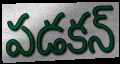
పడకన్